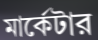
মার্কেটার